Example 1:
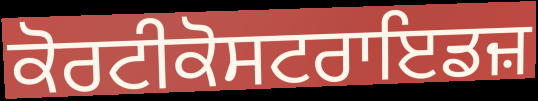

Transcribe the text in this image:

ਕੋਰਟੀਕੋਸਟਰਾਇਡਜ਼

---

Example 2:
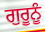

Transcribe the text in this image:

ਗੁਰੂਨੂੰ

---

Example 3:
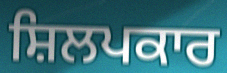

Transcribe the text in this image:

ਸ਼ਿਲਪਕਾਰ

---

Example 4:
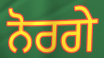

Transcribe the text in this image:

ਨੋਰਗੇ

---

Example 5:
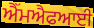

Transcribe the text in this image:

ਐੱਮਐਫਆਈ